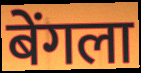
बेंगला